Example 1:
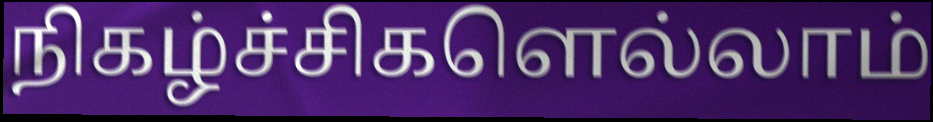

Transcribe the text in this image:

நிகழ்ச்சிகளெல்லாம்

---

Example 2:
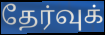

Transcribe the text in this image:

தேர்வுக்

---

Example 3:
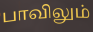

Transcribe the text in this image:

பாவிலும்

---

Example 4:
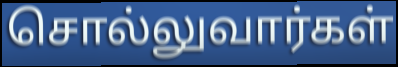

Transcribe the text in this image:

சொல்லுவார்கள்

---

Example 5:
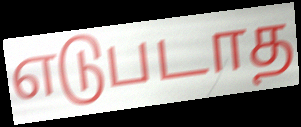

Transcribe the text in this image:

எடுபடாத